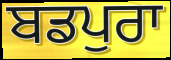
ਬਡਪੁਰਾ